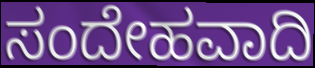
ಸಂದೇಹವಾದಿ